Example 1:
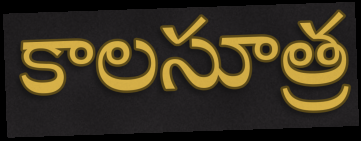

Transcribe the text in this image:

కాలసూత్ర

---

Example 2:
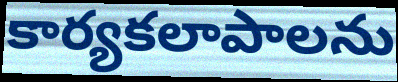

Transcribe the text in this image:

కార్యకలాపాలను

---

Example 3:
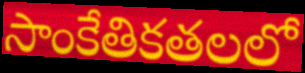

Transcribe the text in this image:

సాంకేతికతలలో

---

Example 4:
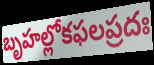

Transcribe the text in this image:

బృహల్లోకఫలప్రదః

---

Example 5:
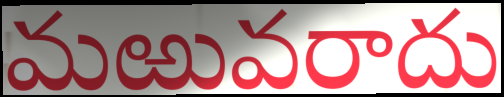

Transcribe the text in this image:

మఱువరాదు